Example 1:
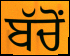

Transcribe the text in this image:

ਬੱਚੋਂ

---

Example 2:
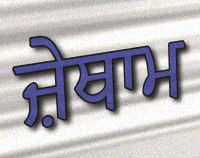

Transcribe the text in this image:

ਜ਼ੇਥਾਮ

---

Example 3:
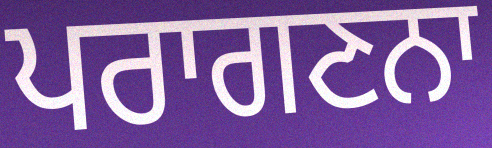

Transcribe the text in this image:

ਪਰਾਗਣਨਾ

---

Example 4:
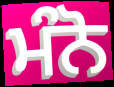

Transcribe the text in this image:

ਮੰਨੋ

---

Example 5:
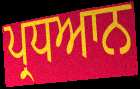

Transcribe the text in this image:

ਪ੍ਰਧਆਨ